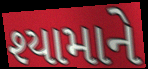
શ્યામાને